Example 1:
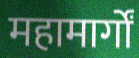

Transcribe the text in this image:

महामार्गों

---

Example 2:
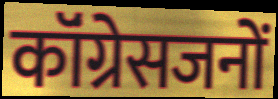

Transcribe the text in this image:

कॉंग्रेसजनों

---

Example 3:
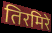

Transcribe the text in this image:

तिरमिरे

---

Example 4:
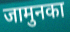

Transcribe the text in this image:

जामुनका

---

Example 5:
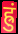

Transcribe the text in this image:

ह्रुं